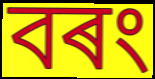
বৰং